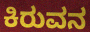
ಕಿರುವನ